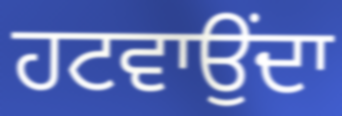
ਹਟਵਾਉਂਦਾ